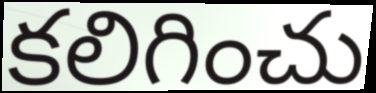
కలిగించు